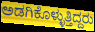
ಅಡಗಿಕೊಳ್ಳುತ್ತಿದ್ದರು